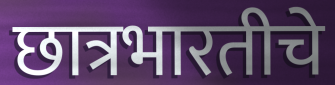
छात्रभारतीचे